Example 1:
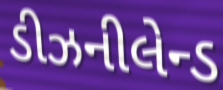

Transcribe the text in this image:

ડીઝનીલેન્ડ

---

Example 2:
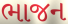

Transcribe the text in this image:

ભાજન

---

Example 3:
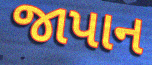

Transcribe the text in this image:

જાપાન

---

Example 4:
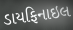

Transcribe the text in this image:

ડાયફિનાઇલ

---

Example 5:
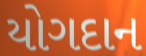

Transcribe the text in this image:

યોગદાન